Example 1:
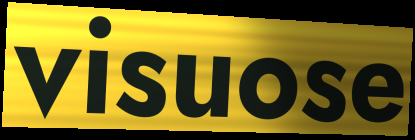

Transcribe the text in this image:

visuose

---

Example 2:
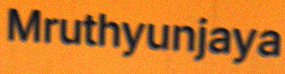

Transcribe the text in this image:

Mruthyunjaya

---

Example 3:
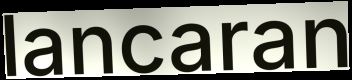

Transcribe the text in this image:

lancaran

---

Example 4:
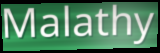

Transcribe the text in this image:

Malathy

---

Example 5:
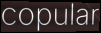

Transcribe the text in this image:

copular